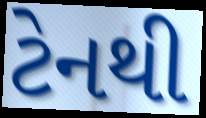
ટેનથી